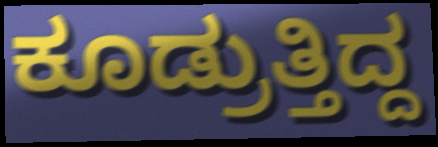
ಕೂಡ್ರುತ್ತಿದ್ದ